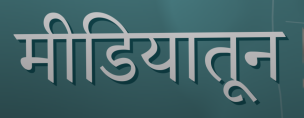
मीडियातून